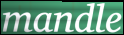
mandle